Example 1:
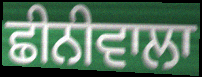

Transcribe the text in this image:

ਛੀਨੀਵਾਲਾ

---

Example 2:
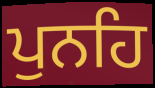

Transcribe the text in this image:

ਪੁਨਹਿ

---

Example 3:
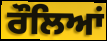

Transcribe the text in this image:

ਰੌਲਿਆਂ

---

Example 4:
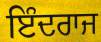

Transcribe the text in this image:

ਇੰਦਰਾਜ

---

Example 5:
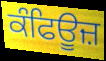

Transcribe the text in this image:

ਕੰਫਿਊਜ਼